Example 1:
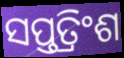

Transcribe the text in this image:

ସପ୍ତତ୍ରିଂଶ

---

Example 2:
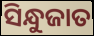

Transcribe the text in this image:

ସିନ୍ଧୁଜାତ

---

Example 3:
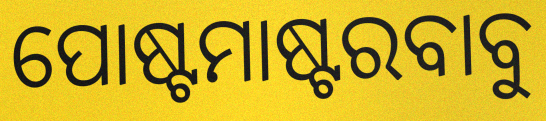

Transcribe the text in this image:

ପୋଷ୍ଟମାଷ୍ଟରବାବୁ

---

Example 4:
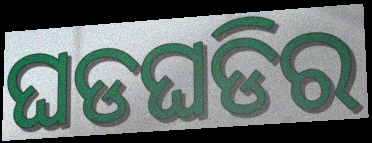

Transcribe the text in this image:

ଘଡଘଡିର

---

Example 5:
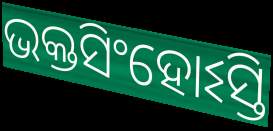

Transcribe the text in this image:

ଭକ୍ତସିଂହୋଽସ୍ତି